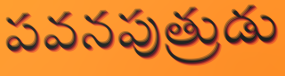
పవనపుత్రుడు